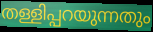
തള്ളിപ്പറയുന്നതും